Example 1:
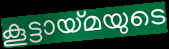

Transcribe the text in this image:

കൂട്ടായ്മയുടെ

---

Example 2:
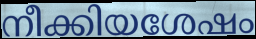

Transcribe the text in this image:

നീക്കിയശേഷം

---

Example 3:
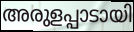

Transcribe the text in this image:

അരുളപ്പാടായി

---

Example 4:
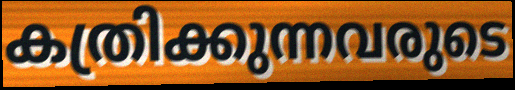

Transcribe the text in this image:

കത്രിക്കുന്നവരുടെ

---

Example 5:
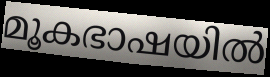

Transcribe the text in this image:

മൂകഭാഷയിൽ